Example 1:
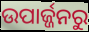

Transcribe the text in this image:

ଉପାର୍ଜ୍ଜନରୁ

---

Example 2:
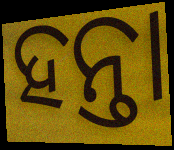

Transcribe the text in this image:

ହନ୍ତା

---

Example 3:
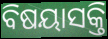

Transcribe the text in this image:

ବିଷୟାସକ୍ତି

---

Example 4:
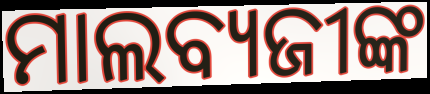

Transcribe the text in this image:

ମାଲବ୍ୟଜୀଙ୍କ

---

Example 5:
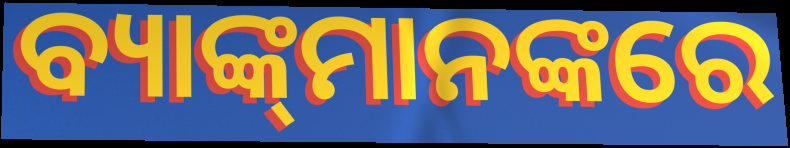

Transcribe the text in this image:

ବ୍ୟାଙ୍କ୍‌ମାନଙ୍କରେ